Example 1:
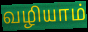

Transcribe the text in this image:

வழியாம்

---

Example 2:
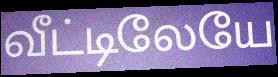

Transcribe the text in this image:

வீட்டிலேயே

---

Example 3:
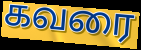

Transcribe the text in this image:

கவரை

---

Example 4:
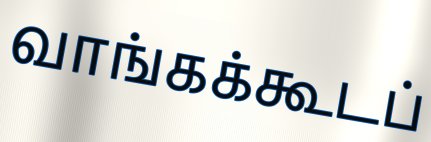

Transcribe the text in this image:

வாங்கக்கூடப்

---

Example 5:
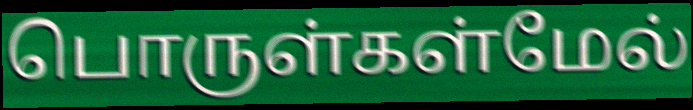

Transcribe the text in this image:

பொருள்கள்மேல்